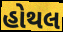
હોથલ